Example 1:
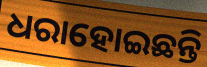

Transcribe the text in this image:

ଧରାହୋଇଛନ୍ତି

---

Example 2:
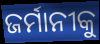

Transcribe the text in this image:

ଜର୍ମାନୀକୁ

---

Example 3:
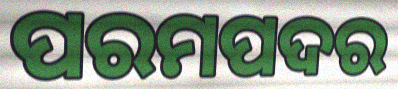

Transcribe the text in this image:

ପରମପଦର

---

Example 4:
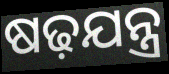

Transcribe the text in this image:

ଷଢ଼ଯନ୍ତ୍ର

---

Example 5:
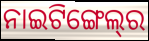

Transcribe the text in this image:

ନାଇଟିଙ୍ଗେଲ୍‌ର